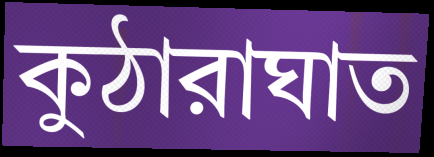
কুঠারাঘাত